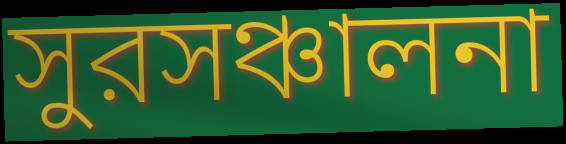
সুরসঞ্চালনা